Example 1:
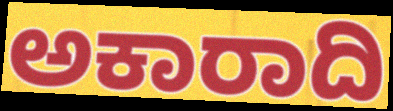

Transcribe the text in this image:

ಅಕಾರಾದಿ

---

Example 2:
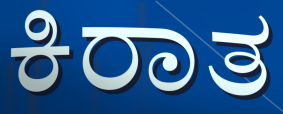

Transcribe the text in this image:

ಕಿರಾತ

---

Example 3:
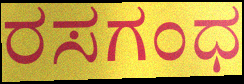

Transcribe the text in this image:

ರಸಗಂಧ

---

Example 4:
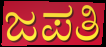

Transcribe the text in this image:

ಜಪತಿ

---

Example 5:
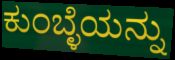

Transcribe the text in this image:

ಕುಂಬ್ಳೆಯನ್ನು